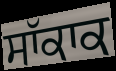
ਸਾੱਕਾਕ